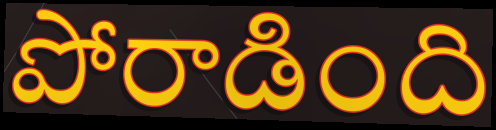
పోరాడింది